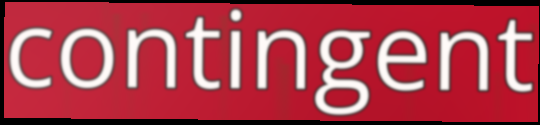
contingent